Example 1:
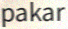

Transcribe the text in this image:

pakar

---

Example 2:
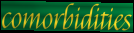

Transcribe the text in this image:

comorbidities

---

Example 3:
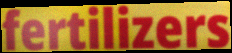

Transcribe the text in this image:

fertilizers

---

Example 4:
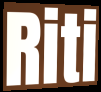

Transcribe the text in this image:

Riti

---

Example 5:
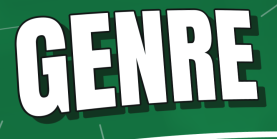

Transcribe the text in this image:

GENRE